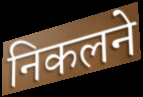
निकलने